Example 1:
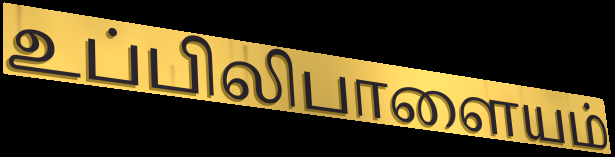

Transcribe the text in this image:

உப்பிலிபாளையம்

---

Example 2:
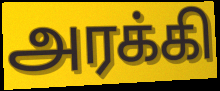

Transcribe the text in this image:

அரக்கி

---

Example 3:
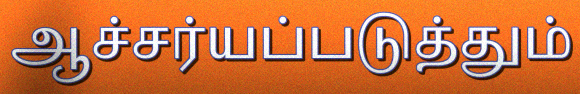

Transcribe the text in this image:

ஆச்சர்யப்படுத்தும்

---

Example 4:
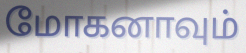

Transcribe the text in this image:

மோகனாவும்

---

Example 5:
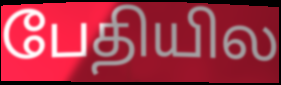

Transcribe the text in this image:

பேதியில